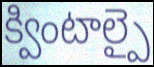
క్వింటాల్పై